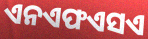
ଏନଏଫଏସଏ